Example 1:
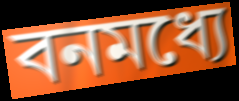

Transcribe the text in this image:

বনমধ্যে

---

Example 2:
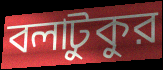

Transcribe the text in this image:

বলাটুকুর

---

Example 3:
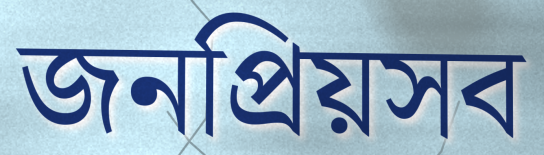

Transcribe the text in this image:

জনপ্রিয়সব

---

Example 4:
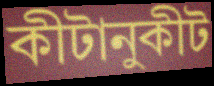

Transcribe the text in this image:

কীটানুকীট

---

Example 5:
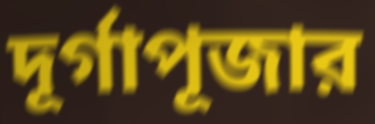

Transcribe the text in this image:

দূর্গাপূজার